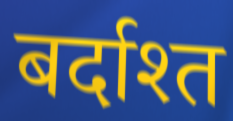
बर्दाश्त